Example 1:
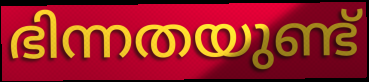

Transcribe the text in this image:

ഭിന്നതയുണ്ട്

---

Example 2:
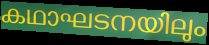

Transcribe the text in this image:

കഥാഘടനയിലും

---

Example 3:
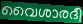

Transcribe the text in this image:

വൈശാരദീ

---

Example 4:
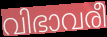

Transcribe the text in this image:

വിഭാവരീ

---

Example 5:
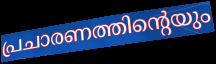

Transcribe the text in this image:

പ്രചാരണത്തിന്റെയും